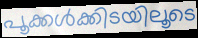
പൂക്കൾക്കിടയിലൂടെ